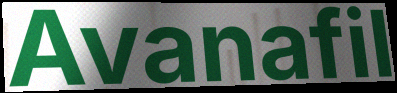
Avanafil